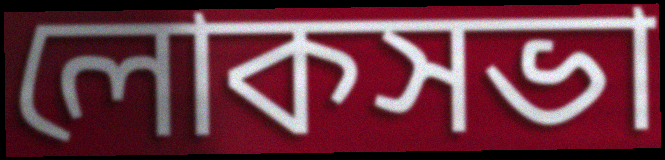
লোকসভা